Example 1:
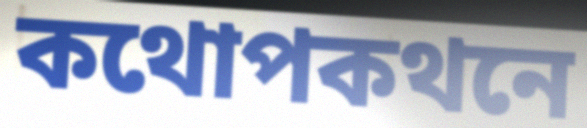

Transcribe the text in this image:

কথোপকথনে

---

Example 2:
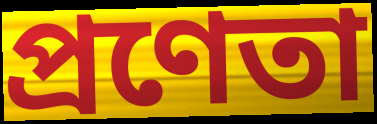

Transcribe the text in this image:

প্রণেতা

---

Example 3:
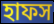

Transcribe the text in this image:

হাফস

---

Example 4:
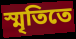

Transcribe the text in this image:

স্মৃতিতে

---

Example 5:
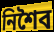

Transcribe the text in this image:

নিশৈব